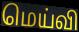
மெய்வி